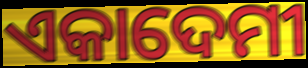
ଏକାଦେମୀ